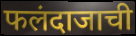
फलंदाजाची